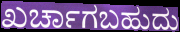
ಖರ್ಚಾಗಬಹುದು